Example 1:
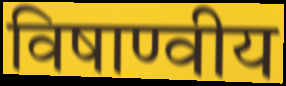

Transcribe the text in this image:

विषाण्वीय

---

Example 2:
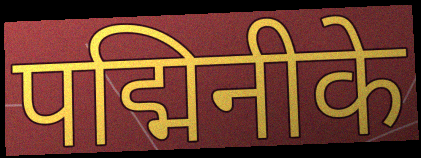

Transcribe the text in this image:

पद्मिनीके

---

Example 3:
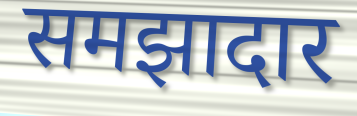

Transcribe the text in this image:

समझादार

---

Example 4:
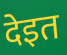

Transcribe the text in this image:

देइत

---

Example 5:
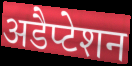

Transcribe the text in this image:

अडैप्टेशन